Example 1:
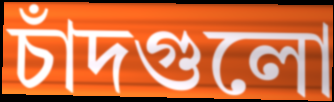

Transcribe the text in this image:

চাঁদগুলো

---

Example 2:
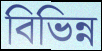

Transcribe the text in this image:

বিভিন্ন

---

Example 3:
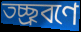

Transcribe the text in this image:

তচ্ছ্রবণে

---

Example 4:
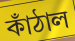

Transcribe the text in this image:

কাঁঠাল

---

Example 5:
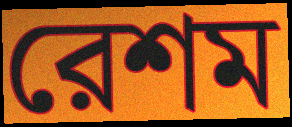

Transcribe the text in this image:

রেশম